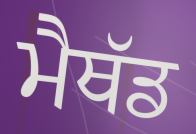
ਮੈਥੱਡ